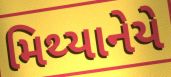
મિથ્યાનેયે